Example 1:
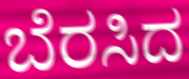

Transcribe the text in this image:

ಬೆರಸಿದ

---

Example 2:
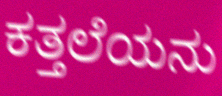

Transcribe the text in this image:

ಕತ್ತಲೆಯನು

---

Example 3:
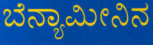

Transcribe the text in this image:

ಬೆನ್ಯಾಮೀನಿನ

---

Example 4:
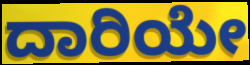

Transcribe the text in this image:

ದಾರಿಯೇ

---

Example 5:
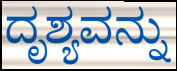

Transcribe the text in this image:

ದೃಶ್ಯವನ್ನು